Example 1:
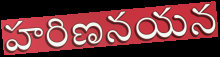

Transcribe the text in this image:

హరిణనయన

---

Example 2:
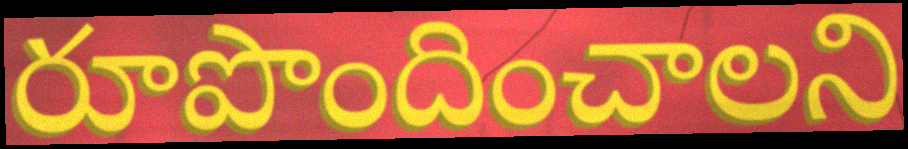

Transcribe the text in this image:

రూపొందించాలని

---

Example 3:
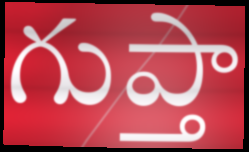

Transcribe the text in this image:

గుప్తా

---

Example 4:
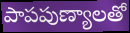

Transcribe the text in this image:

పాపపుణ్యాలతో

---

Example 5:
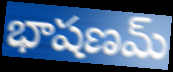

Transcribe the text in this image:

భాషణమ్